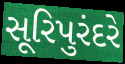
સૂરિપુરંદરે